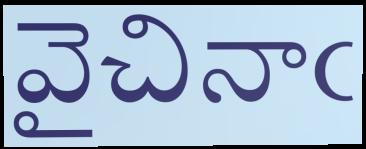
వైచినాఁ